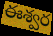
ఈశ్వర